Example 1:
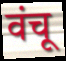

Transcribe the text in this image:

वंचू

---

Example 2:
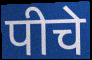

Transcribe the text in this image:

पीचे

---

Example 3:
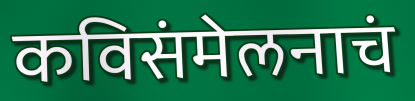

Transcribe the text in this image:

कविसंमेलनाचं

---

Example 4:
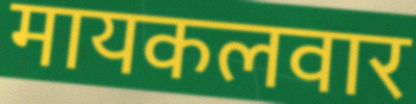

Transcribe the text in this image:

मायकलवार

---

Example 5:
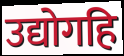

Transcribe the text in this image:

उद्योगहि